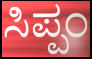
ಸಿಪ್ಪಂ